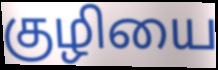
குழியை